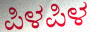
ಪಿಳಪಿಳ